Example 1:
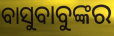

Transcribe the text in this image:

ବାସୁବାବୁଙ୍କର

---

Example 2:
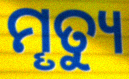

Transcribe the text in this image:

ମୄତ୍ୟୁ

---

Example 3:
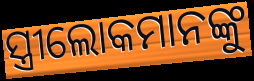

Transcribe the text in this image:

ସ୍ତ୍ରୀଲୋକମାନଙ୍କୁ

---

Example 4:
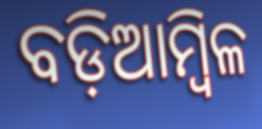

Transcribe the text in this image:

ବଡ଼ିଆମ୍ବିଳ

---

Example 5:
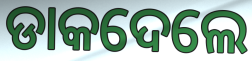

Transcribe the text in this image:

ଡାକଦେଲେ